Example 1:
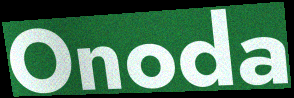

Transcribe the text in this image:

Onoda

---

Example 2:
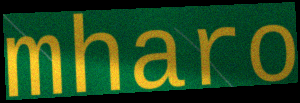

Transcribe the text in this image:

mharo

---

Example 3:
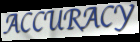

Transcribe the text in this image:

ACCURACY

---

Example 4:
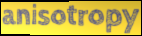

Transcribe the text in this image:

anisotropy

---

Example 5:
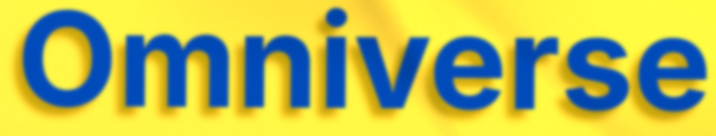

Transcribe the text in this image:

Omniverse